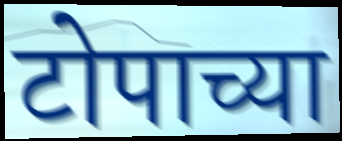
टोपाच्या